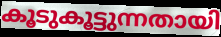
കൂടുകൂട്ടുന്നതായി